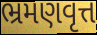
ભ્રમણવૃત્ત